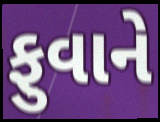
ફુવાને